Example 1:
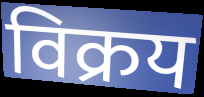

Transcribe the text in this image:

विक्रय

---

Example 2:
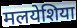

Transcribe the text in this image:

मलयेशिया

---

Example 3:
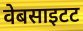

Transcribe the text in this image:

वेबसाइटट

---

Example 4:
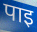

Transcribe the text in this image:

पाइ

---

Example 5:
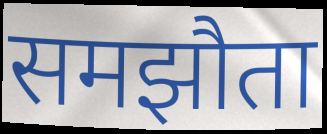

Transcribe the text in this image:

समझौता